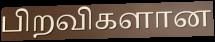
பிறவிகளான